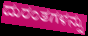
ದುರಂತಗಳನ್ನು